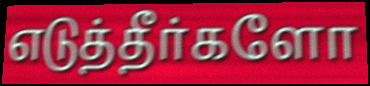
எடுத்தீர்களோ